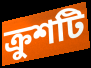
ক্রুশটি